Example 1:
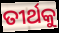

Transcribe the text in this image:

ତୀର୍ଥକୁ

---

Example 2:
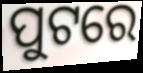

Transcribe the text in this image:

ପୁଟରେ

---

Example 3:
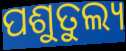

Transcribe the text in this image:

ପଶୁତୁଲ୍ୟ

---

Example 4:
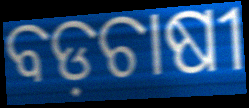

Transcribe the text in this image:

ବଡ଼ଚାଷୀ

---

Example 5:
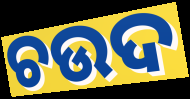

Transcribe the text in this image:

ଚଉଦ